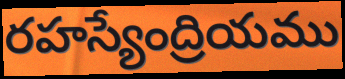
రహస్యేంద్రియము